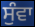
ਸੁੰਵਾ